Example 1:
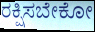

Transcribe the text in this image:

ರಕ್ಷಿಸಬೇಕೋ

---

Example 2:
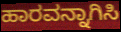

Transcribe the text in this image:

ಹಾರವನ್ನಾಗಿಸಿ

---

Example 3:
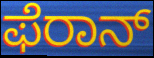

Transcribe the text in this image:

ಫೆರಾನ್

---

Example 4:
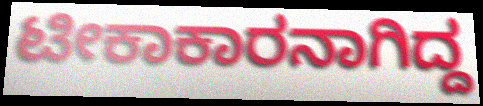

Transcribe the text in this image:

ಟೀಕಾಕಾರನಾಗಿದ್ದ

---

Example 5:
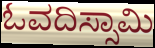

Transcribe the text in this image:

ಓವದಿಸ್ಸಾಮಿ